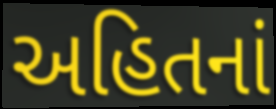
અહિતનાં